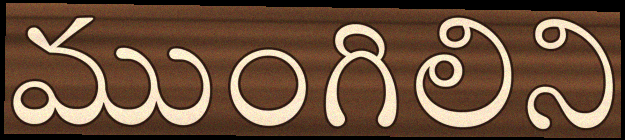
ముంగిలిని